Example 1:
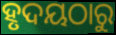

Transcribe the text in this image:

ହୃଦୟଠାରୁ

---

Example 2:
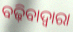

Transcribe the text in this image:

ବଢ଼ିବାଦ୍ୱାରା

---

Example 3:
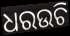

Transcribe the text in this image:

ଧରଉଚି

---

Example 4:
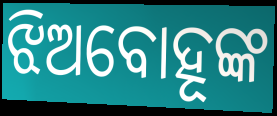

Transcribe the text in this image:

ଝିଅବୋହୂଙ୍କ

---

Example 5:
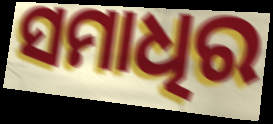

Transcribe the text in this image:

ସମାଧିର